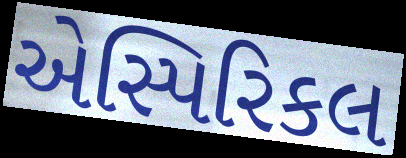
એસ્પિરિકલ